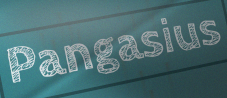
Pangasius